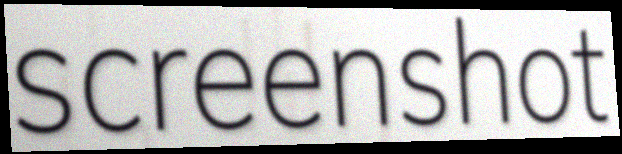
screenshot